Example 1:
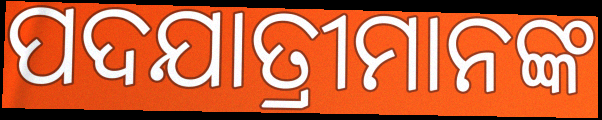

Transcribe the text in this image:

ପଦଯାତ୍ରୀମାନଙ୍କ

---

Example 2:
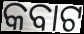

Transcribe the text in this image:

କବାଟ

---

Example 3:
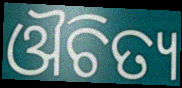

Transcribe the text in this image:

ଔଚିତ୍ଯ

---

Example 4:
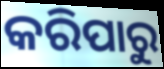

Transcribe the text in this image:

କରିପାରୁ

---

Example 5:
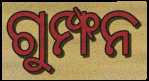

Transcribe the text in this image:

ଗୁମ୍ଫନ